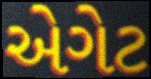
એગેટ